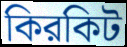
কিরকিট